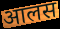
आलस